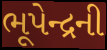
ભૂપેન્દ્રની